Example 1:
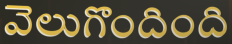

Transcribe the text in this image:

వెలుగొందింది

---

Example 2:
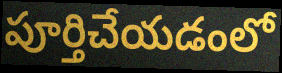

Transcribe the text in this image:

పూర్తిచేయడంలో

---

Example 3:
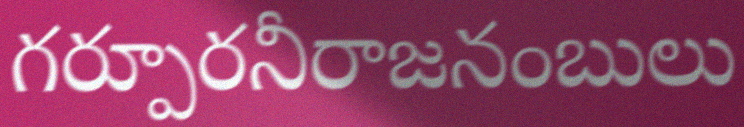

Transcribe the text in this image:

గర్పూరనీరాజనంబులు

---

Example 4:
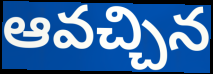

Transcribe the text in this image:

ఆవచ్చిన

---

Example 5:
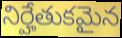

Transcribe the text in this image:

నిర్హేతుకమైన